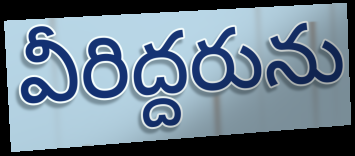
వీరిద్దరును